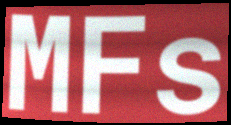
MFs